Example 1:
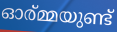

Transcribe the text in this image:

ഓര്മ്മയുണ്ട്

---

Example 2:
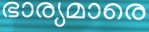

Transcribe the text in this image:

ഭാര്യമാരെ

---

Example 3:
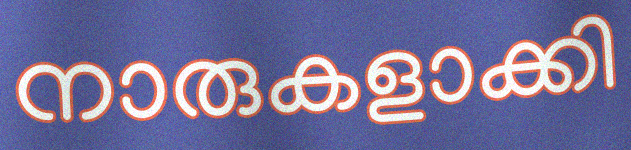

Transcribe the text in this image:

നാരുകളാക്കി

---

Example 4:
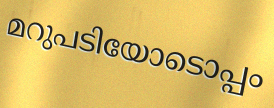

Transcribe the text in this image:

മറുപടിയോടൊപ്പം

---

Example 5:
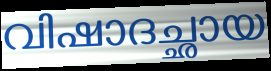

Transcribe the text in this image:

വിഷാദച്ഛായ